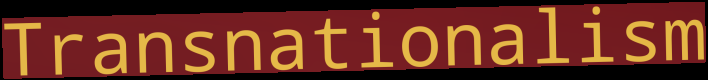
Transnationalism